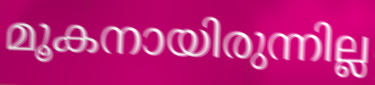
മൂകനായിരുന്നില്ല